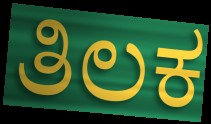
ತಿಲಕ